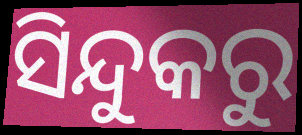
ସିନ୍ଦୁକରୁ